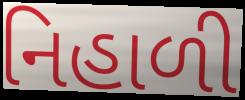
નિહાળી